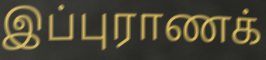
இப்புராணக்